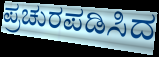
ಪ್ರಚುರಪಡಿಸಿದ